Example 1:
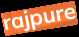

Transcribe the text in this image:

rajpure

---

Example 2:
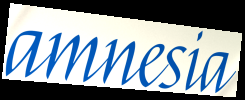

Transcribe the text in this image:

amnesia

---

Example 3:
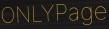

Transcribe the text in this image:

ONLYPage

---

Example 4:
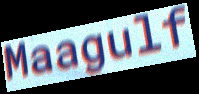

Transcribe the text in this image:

Maagulf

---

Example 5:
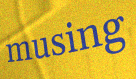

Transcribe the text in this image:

musing